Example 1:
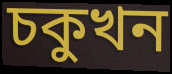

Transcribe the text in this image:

চকুখন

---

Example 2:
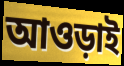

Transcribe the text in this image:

আওড়াই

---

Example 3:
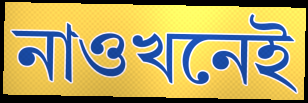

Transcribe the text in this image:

নাওখনেই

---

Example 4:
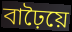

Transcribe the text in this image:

বাঢ়ৈয়ে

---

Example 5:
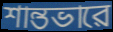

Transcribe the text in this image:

শান্তভাৱে